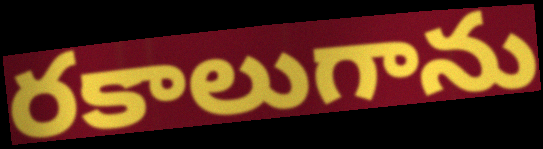
రకాలుగాను